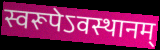
स्वरूपेऽवस्थानम्